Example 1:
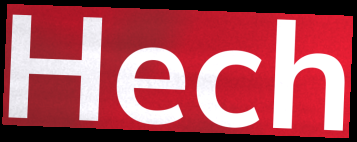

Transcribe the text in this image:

Hech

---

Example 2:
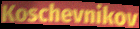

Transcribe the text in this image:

Koschevnikov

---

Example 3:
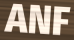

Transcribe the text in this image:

ANF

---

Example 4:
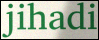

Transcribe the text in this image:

jihadi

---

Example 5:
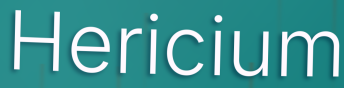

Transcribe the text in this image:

Hericium